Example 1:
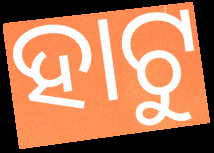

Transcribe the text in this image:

ହାଟୁ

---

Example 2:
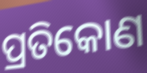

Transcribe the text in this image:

ପ୍ରତିକୋଣ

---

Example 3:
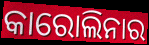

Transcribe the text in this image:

କାରୋଲିନାର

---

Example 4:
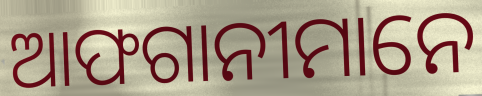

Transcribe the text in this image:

ଆଫଗାନୀମାନେ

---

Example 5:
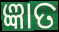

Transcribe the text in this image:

ଜ୍ଞାତ